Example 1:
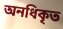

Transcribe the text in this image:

অনধিকৃত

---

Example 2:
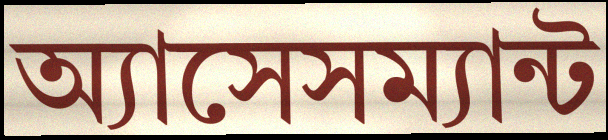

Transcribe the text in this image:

অ্যাসেসম্যান্ট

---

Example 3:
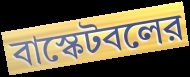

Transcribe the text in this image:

বাস্কেটবলের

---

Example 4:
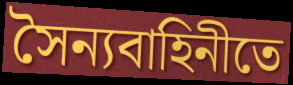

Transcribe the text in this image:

সৈন্যবাহিনীতে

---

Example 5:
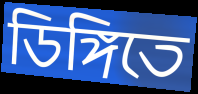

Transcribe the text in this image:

ডিঙ্গিতে